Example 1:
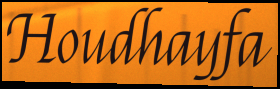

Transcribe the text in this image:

Houdhayfa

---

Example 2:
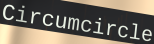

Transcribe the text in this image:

Circumcircle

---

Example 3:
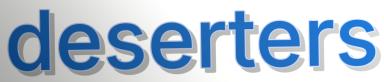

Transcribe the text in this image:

deserters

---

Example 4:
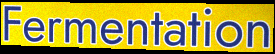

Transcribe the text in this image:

Fermentation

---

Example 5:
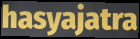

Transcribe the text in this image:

hasyajatra